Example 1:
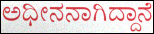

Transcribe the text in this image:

ಅಧೀನನಾಗಿದ್ದಾನೆ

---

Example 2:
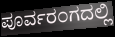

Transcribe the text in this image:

ಪೂರ್ವರಂಗದಲ್ಲಿ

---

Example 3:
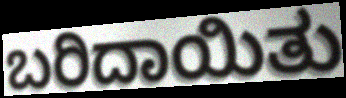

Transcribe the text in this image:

ಬರಿದಾಯಿತು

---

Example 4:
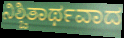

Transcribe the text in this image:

ನಿಶ್ಚಿತಾರ್ಥವಾದ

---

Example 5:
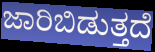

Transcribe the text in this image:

ಜಾರಿಬಿಡುತ್ತದೆ